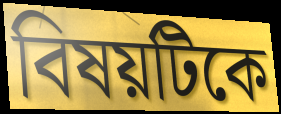
বিষয়টিকে